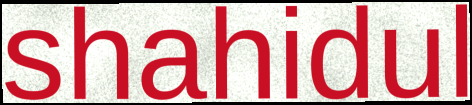
shahidul